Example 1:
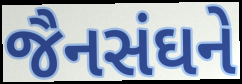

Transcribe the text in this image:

જૈનસંઘને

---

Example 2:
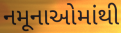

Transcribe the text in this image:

નમૂનાઓમાંથી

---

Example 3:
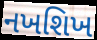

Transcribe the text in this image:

નખશિખ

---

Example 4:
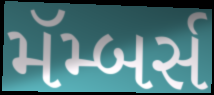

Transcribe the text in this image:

મૅમ્બર્સ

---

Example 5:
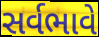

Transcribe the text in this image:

સર્વભાવે